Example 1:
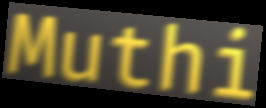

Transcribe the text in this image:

Muthi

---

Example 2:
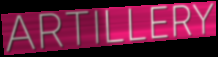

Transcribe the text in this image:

ARTILLERY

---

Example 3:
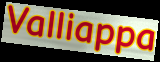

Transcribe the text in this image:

Valliappa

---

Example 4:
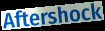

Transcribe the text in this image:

Aftershock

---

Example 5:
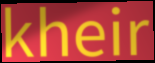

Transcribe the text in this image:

kheir